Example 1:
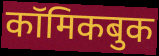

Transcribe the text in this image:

कॉमिकबुक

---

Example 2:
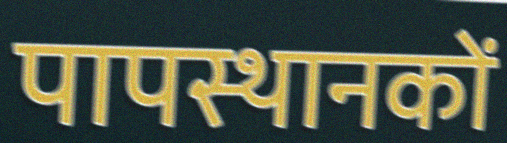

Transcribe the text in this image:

पापस्थानकों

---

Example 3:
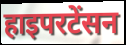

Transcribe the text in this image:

हाइपरटेंसन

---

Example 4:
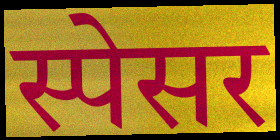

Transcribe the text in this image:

स्पेसर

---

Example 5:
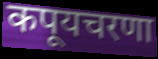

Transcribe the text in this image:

कपूयचरणा